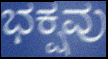
ಭಕ್ಷವು